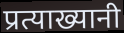
प्रत्याख्यानी